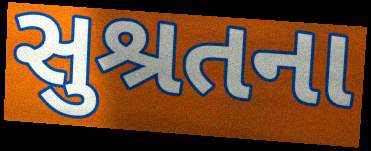
સુશ્રતના